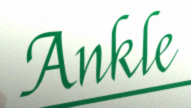
Ankle